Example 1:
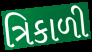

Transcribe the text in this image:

ત્રિકાળી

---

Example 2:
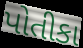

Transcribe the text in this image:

પોતીકા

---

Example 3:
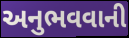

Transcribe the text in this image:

અનુભવવાની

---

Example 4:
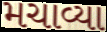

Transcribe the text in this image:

મચાવ્યા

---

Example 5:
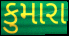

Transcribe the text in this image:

કુમારા